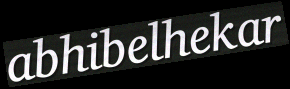
abhibelhekar